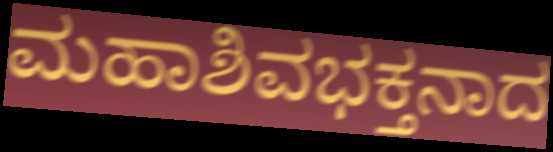
ಮಹಾಶಿವಭಕ್ತನಾದ